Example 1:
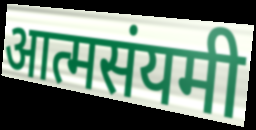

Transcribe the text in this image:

आत्मसंयमी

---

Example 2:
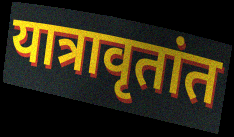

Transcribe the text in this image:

यात्रावृतांत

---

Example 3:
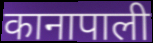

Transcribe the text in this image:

कानापाली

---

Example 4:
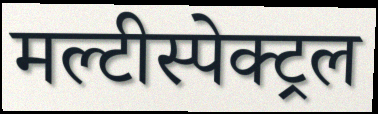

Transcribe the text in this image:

मल्टीस्पेक्ट्रल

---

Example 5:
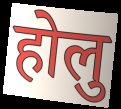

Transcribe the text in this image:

होलु